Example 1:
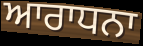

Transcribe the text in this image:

ਆਰਾਧਨਾ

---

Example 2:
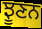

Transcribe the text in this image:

ਝੂਣਨ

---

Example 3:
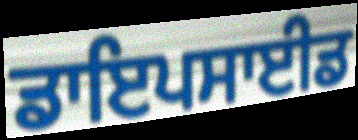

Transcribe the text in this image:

ਡਾਇਪਸਾਈਡ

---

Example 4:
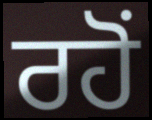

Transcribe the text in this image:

ਰਹੋਂ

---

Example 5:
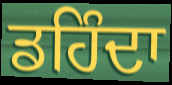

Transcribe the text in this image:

ਡਹਿੰਦਾ